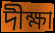
দীক্ষা